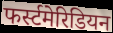
फर्स्टमेरिडियन